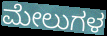
ಮೇಲುಗಳ